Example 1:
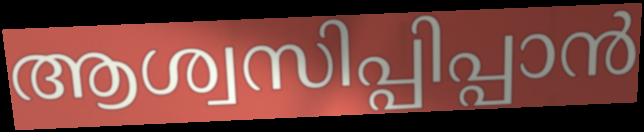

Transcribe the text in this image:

ആശ്വസിപ്പിപ്പാൻ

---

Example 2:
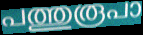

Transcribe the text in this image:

പത്തുരൂപാ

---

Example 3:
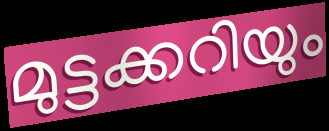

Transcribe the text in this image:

മുട്ടക്കറിയും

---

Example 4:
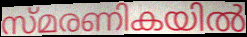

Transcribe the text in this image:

സ്മരണികയിൽ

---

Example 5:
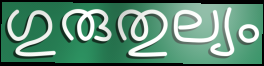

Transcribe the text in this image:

ഗുരുതുല്യം